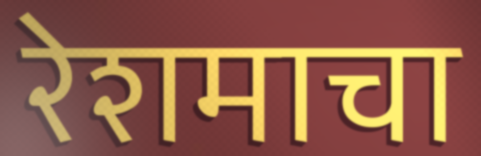
रेशमाचा